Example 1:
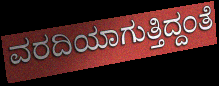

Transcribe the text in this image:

ವರದಿಯಾಗುತ್ತಿದ್ದಂತೆ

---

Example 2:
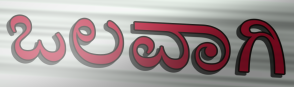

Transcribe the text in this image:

ಒಲವಾಗಿ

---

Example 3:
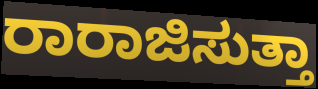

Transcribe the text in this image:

ರಾರಾಜಿಸುತ್ತಾ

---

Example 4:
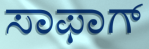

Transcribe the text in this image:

ಸಾಫಾಗ್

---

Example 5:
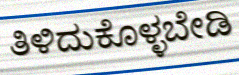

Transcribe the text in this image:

ತಿಳಿದುಕೊಳ್ಳಬೇಡಿ